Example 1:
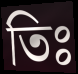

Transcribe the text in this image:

তিঃ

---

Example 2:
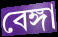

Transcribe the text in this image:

বেঙ্গা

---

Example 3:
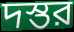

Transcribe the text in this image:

দস্তর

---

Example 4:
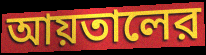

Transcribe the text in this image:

আয়তালের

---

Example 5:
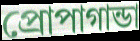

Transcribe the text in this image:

প্রোপাগান্ডা